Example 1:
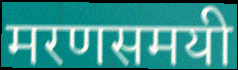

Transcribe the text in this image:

मरणसमयी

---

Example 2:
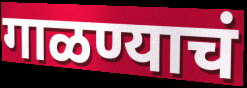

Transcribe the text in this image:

गाळण्याचं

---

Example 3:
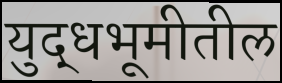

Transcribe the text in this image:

युद्धभूमीतील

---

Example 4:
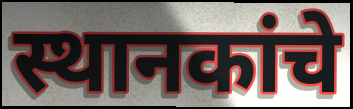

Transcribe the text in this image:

स्थानकांचे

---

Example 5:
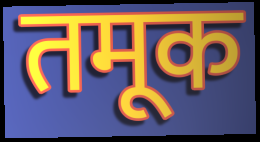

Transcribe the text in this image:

तमूक